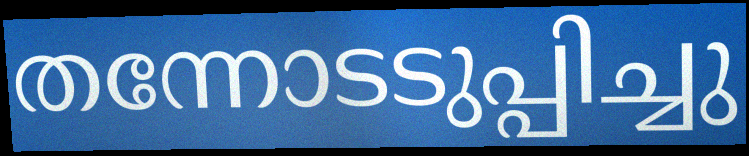
തന്നോടടുപ്പിച്ചു